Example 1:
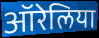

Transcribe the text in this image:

ऑरेलिया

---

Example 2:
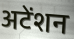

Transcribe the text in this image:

अटेंशन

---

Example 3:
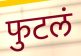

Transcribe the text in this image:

फुटलं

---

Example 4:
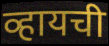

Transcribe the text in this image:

व्हायची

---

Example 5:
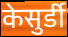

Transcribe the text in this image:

केसुर्डी